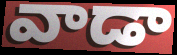
వాడా